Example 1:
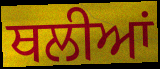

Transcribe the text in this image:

ਥਲੀਆਂ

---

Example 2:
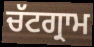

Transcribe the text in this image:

ਚੱਟਗ੍ਰਾਮ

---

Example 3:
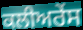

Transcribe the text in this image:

ਕਲੀਅਰੇਂਸ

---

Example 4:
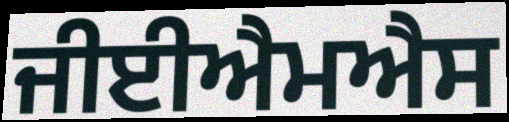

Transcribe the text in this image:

ਜੀਈਐਮਐਸ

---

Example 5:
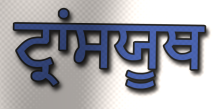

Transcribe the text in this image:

ਟ੍ਰਾਂਸਯੂਥ